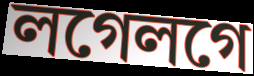
লগেলগে